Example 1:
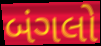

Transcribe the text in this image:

બંગલો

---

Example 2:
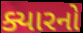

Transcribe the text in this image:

ક્યારનો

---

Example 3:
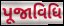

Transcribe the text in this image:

પૂજાવિધિ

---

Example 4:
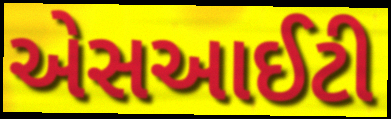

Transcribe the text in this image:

એસઆઈટી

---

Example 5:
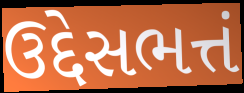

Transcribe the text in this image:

ઉદ્દેસભત્તં